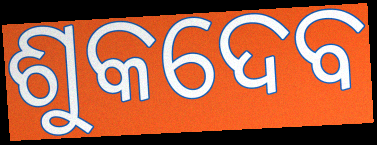
ଶୁକଦେବ